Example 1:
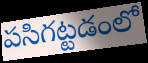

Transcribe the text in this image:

పసిగట్టడంలో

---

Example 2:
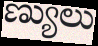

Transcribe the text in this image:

ణ్యులు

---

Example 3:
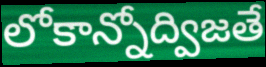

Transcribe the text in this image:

లోకాన్నోద్విజతే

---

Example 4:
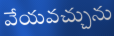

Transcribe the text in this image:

వేయవచ్చును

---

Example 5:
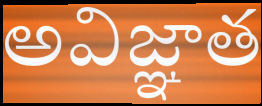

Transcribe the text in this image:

అవిజ్ఞాత